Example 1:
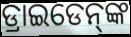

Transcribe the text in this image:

ଡ୍ରାଇଡେନ୍‌ଙ୍କ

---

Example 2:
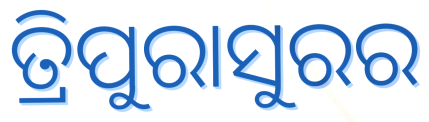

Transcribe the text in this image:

ତ୍ରିପୁରାସୁରର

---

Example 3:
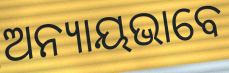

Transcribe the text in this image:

ଅନ୍ୟାୟଭାବେ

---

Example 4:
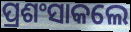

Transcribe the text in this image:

ପ୍ରଶଂସାକଲେ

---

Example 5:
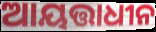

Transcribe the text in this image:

ଆୟତ୍ତାଧୀନ